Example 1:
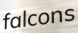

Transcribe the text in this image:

falcons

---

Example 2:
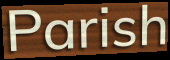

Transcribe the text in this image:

Parish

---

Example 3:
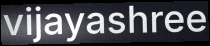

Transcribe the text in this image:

vijayashree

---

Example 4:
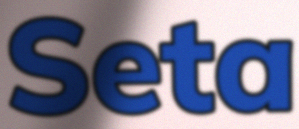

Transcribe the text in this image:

Seta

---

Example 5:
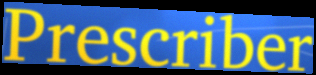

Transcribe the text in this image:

Prescriber